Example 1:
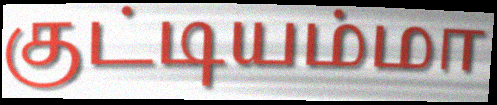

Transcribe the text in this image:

குட்டியம்மா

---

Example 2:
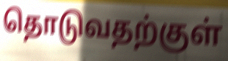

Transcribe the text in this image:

தொடுவதற்குள்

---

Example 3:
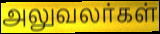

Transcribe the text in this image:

அலுவலர்கள்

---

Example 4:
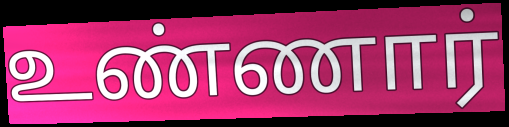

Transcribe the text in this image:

உண்ணார்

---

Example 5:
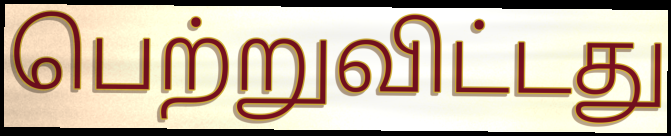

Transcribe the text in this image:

பெற்றுவிட்டது